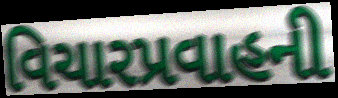
વિચારપ્રવાહની